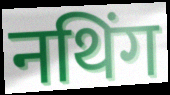
नथिंग